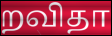
றவிதா